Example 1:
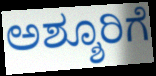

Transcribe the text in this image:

ಅಶ್ಶೂರಿಗೆ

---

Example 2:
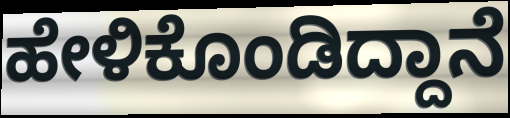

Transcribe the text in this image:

ಹೇಳಿಕೊಂಡಿದ್ದಾನೆ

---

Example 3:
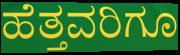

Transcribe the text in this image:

ಹೆತ್ತವರಿಗೂ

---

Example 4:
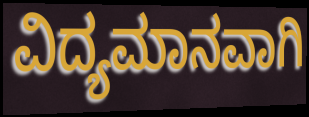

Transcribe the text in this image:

ವಿದ್ಯಮಾನವಾಗಿ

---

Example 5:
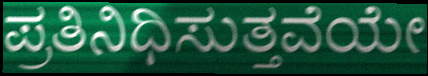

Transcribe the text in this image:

ಪ್ರತಿನಿಧಿಸುತ್ತವೆಯೇ